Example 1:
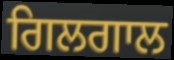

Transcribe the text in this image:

ਗਿਲਗਾਲ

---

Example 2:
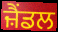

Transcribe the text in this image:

ਜ਼ੈਂਡਲ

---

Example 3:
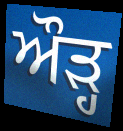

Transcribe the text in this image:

ਔੜ੍ਹ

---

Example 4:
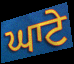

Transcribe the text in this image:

ਘਾਟੇ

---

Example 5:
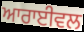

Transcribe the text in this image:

ਆਰਾਈਵਲ